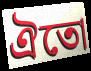
ঐতো